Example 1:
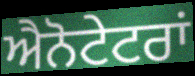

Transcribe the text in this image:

ਐਨੋਟੇਟਰਾਂ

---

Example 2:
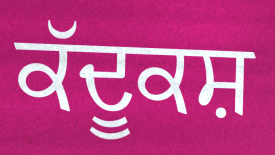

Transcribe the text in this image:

ਕੱਦੂਕਸ਼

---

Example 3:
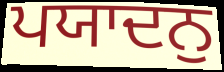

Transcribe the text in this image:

ਪਯਾਦਨੁ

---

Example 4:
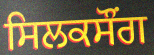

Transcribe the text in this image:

ਸਿਲਕਸੌਂਗ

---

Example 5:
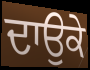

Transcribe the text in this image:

ਦਾਉਕੇ